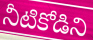
నీటికోడిని